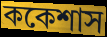
ককেশাস